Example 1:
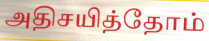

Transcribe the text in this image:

அதிசயித்தோம்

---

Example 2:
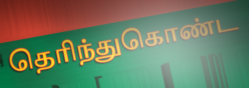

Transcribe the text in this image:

தெரிந்துகொண்ட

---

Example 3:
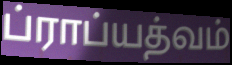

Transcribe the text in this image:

ப்ராப்யத்வம்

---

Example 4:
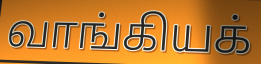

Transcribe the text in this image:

வாங்கியக்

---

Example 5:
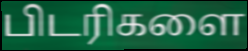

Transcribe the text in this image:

பிடரிகளை